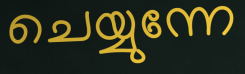
ചെയ്യുന്നേ